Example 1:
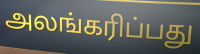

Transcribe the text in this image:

அலங்கரிப்பது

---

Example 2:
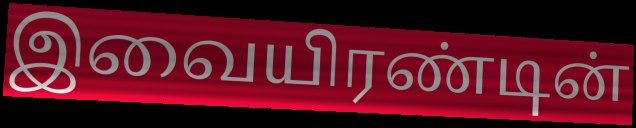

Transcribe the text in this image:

இவையிரண்டின்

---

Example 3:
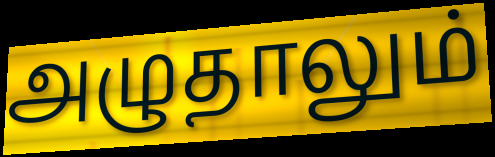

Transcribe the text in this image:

அழுதாலும்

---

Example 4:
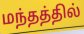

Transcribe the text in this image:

மந்தத்தில்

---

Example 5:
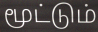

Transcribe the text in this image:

மூட்டும்